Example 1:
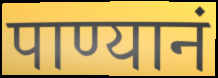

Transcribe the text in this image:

पाण्यानं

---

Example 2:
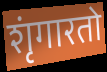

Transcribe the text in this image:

शृंगारतो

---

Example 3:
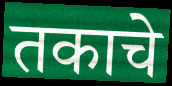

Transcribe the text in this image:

तकाचे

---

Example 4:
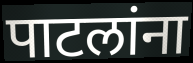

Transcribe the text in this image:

पाटलांना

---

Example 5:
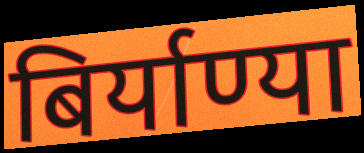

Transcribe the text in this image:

बिर्याण्या